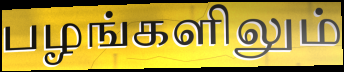
பழங்களிலும்